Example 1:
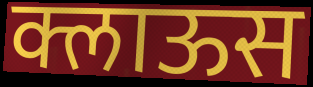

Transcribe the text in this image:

क्लाऊस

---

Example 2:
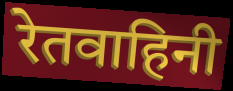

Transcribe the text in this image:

रेतवाहिनी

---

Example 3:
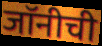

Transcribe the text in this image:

जॉनीची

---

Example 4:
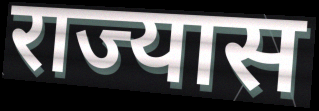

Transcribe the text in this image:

राज्यास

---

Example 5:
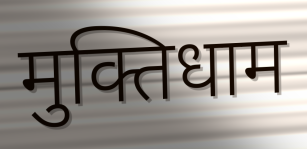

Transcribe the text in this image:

मुक्तिधाम